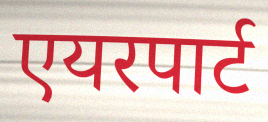
एयरपार्ट